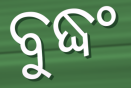
ବୁଦ୍ଧଂ